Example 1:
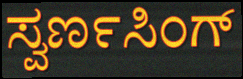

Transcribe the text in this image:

ಸ್ವರ್ಣಸಿಂಗ್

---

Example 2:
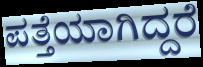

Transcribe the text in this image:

ಪತ್ತೆಯಾಗಿದ್ದರೆ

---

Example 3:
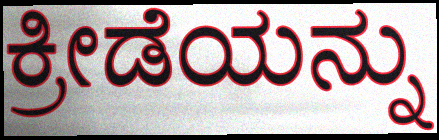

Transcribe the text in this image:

ಕ್ರೀಡೆಯನ್ನು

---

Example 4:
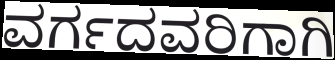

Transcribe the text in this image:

ವರ್ಗದವರಿಗಾಗಿ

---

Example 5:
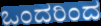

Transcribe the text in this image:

ಒಂದರಿಂದ